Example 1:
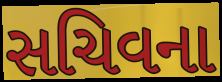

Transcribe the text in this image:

સચિવના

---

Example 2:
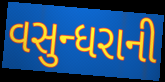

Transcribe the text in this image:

વસુન્ધરાની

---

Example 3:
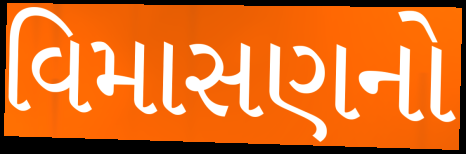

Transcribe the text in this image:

વિમાસણનો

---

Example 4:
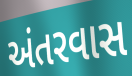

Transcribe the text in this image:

અંતરવાસ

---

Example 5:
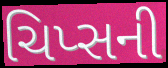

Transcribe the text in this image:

ચિપ્સની